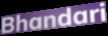
Bhandari